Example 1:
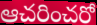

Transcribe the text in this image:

ఆచరించరో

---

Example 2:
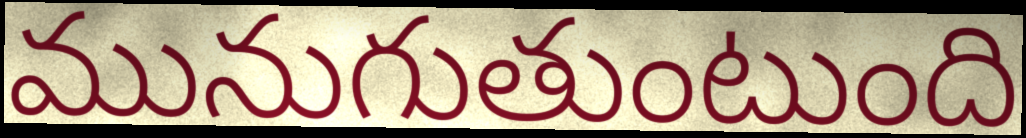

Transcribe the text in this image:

మునుగుతుంటుంది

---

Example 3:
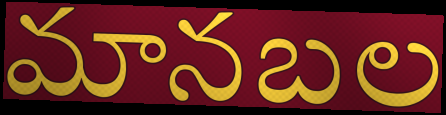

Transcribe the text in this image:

మానబల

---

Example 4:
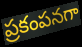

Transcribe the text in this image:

ప్రకంపనగా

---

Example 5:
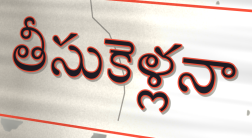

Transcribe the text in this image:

తీసుకెళ్లనా